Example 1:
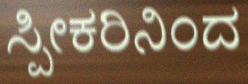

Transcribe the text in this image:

ಸ್ಪೀಕರಿನಿಂದ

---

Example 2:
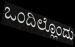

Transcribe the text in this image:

ಒಂದಿಲ್ಲೊಂದು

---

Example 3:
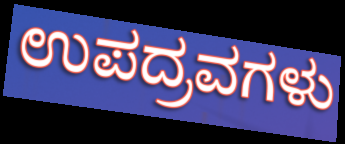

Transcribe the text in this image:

ಉಪದ್ರವಗಳು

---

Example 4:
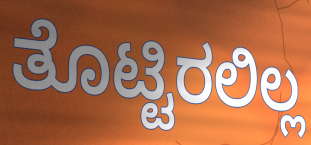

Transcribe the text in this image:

ತೊಟ್ಟಿರಲಿಲ್ಲ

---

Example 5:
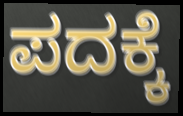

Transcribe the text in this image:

ಪದಕ್ಕೆ